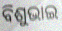
ବିଶୁଭାଇ